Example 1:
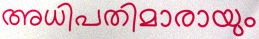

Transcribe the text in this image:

അധിപതിമാരായും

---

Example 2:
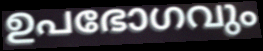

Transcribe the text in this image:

ഉപഭോഗവും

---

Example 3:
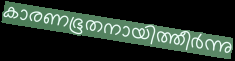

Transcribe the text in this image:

കാരണഭൂതനായിത്തീർന്നു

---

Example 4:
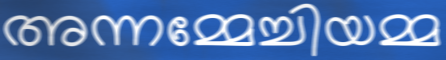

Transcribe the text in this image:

അന്നമ്മേച്ചിയമ്മ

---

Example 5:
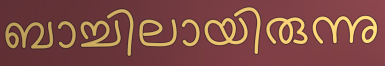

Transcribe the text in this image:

ബാച്ചിലായിരുന്നു